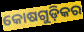
କୋଷଗୁଡ଼ିକର